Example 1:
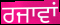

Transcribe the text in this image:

ਰਜਾਵਾਂ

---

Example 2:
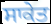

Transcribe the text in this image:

ਸਾਕੇਤ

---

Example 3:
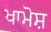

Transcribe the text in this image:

ਖਾਮੋਸ਼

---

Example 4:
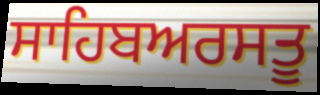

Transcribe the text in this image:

ਸਾਹਿਬਅਰਸਤੂ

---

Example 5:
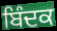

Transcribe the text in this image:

ਬਿੰਦਕ